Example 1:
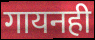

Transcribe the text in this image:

गायनही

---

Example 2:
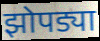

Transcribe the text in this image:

झोपड्या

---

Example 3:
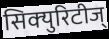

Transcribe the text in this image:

सिक्युरिटीज्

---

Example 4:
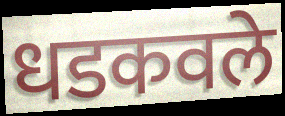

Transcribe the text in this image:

धडकवले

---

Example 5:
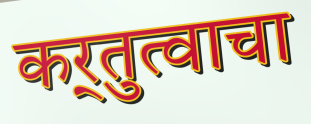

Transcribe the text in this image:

कर्तुत्वाचा